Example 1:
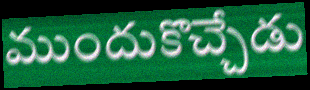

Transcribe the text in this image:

ముందుకొచ్చేడు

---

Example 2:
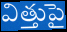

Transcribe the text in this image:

విత్తుపై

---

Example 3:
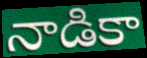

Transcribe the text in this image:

నాడికా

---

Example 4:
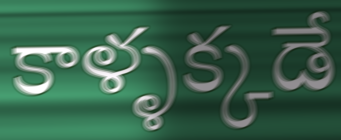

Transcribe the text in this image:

కాళ్ళక్కడే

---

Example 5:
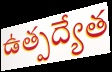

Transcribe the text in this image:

ఉత్పద్యేత